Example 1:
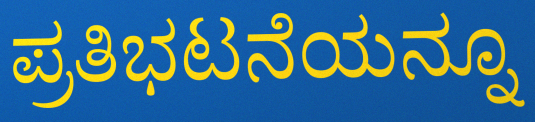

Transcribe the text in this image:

ಪ್ರತಿಭಟನೆಯನ್ನೂ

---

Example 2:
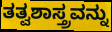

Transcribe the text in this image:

ತತ್ವಶಾಸ್ತ್ರವನ್ನು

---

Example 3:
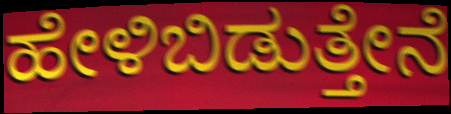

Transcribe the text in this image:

ಹೇಳಿಬಿಡುತ್ತೇನೆ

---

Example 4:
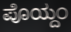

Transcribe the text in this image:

ಪೊಯ್ದಂ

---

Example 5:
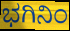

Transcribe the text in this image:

ಭಗಿನಿಂ